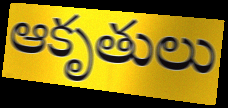
ఆకృతులు